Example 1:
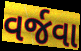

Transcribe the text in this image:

વર્જવા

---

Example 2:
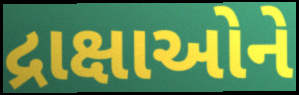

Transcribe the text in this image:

દ્રાક્ષાઓને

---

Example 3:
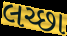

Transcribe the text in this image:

લચ્છા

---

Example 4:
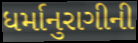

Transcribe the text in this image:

ધર્માનુરાગીની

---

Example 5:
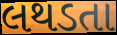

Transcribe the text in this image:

લથડતા